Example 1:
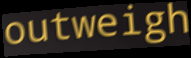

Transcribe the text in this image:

outweigh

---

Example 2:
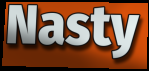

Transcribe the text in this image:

Nasty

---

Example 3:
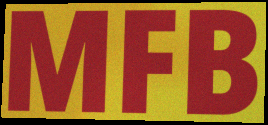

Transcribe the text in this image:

MFB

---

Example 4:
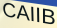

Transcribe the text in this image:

CAIIB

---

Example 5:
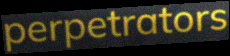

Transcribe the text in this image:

perpetrators